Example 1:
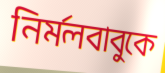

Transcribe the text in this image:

নির্মলবাবুকে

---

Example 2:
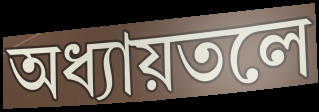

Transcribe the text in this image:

অধ্যায়তলে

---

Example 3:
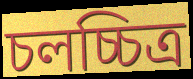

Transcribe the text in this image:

চলচ্চিত্র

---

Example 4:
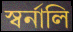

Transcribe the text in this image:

স্বর্নালি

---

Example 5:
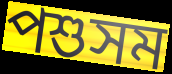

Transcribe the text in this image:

পশুসম